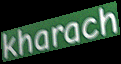
kharach